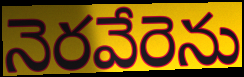
నెరవేరెను